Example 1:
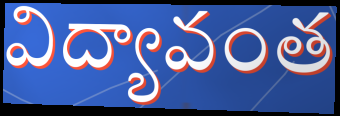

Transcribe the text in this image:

విద్యావంత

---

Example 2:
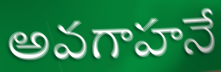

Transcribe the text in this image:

అవగాహనే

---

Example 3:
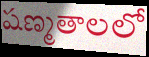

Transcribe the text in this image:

షణ్మతాలలో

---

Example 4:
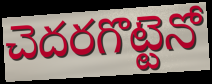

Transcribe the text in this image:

చెదరగొట్టెనో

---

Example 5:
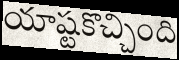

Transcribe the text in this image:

యాష్టకొచ్చింది